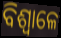
ବିଶ୍ଵାଳେ